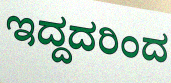
ಇದ್ದದರಿಂದ